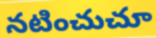
నటించుచూ